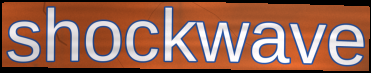
shockwave